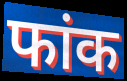
फांक